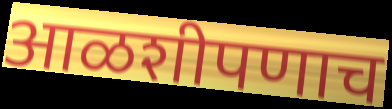
आळशीपणाच